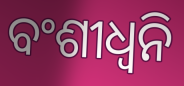
ବଂଶୀଧ୍ବନି